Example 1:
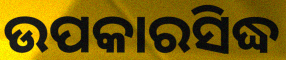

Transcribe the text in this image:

ଉପକାରସିଦ୍ଧ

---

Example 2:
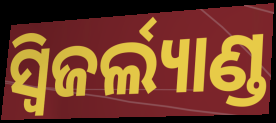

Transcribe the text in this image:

ସ୍ୱିଜର୍ଲ୍ୟାଣ୍ଡ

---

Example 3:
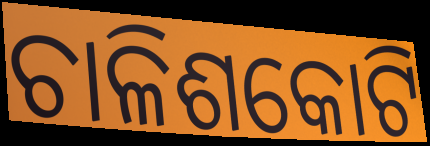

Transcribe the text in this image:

ଚାଳିଶକୋଟି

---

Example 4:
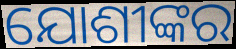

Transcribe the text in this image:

ଯୋଶୀଙ୍କର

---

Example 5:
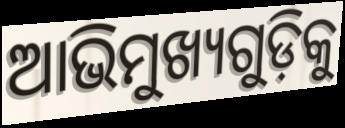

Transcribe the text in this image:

ଆଭିମୁଖ୍ୟଗୁଡ଼ିକୁ